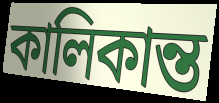
কালিকান্ত